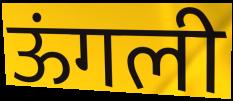
ऊंगली